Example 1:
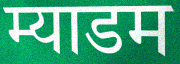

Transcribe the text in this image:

म्याडम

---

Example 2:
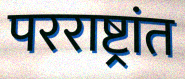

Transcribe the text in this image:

परराष्ट्रांत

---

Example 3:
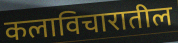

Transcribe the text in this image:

कलाविचारातील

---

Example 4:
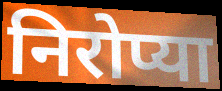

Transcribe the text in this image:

निरोप्या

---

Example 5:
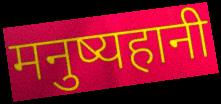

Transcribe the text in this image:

मनुष्यहानी